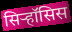
सिऱ्हॉसिस